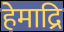
हेमाद्रि